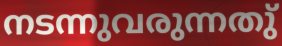
നടന്നുവരുന്നതു്